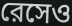
রেসেও